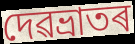
দেৱভ্ৰাতৰ